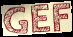
GEF